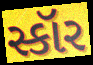
સ્કૉર